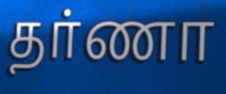
தர்ணா